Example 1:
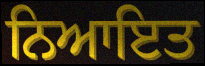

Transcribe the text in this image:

ਨਿਆਇਤ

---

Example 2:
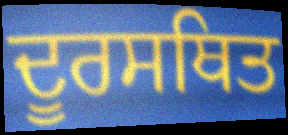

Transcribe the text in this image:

ਦੂਰਸਥਿਤ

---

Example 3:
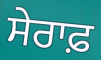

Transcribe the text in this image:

ਸੇਰਾਫ਼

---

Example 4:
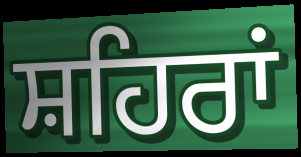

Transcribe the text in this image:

ਸ਼ਹਿਰਾਂ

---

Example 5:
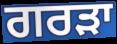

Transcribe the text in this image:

ਗਰੜਾ